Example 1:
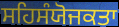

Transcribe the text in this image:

ਸਹਿਸੰਯੋਜਕਤਾ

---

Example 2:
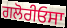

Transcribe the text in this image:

ਗਲੋਰੀਓਸਾ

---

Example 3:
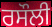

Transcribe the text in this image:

ਰਸੌਲੀ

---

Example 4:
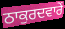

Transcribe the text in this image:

ਠਾਕੁਰਦਵਾਰੇਂ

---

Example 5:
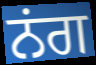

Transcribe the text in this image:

ਨਂਗ